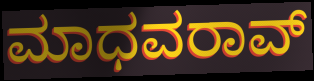
ಮಾಧವರಾವ್